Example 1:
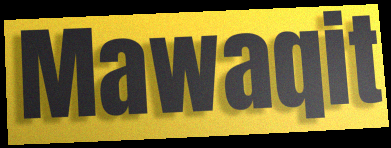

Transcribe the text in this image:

Mawaqit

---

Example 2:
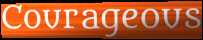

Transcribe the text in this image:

Courageous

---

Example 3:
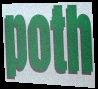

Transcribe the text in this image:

poth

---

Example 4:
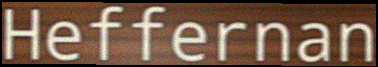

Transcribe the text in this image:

Heffernan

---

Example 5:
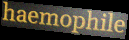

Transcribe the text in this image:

haemophile